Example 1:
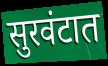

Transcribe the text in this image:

सुरवंटात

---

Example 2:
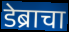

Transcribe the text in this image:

डेब्राचा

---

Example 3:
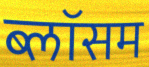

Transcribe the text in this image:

ब्लॉसम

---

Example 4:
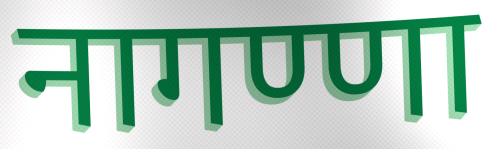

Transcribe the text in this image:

नागण्णा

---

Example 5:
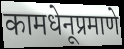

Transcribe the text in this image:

कामधेनूप्रमाणे